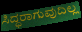
ಸಿದ್ಧರಾಗುವುದಿಲ್ಲ